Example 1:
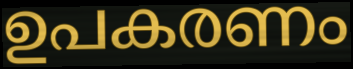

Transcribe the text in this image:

ഉപകരണം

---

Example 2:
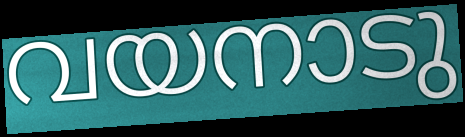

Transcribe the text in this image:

വയനാടു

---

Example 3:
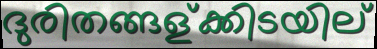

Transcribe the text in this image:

ദുരിതങ്ങള്ക്കിടയില്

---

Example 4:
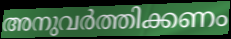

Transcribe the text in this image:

അനുവർത്തിക്കണം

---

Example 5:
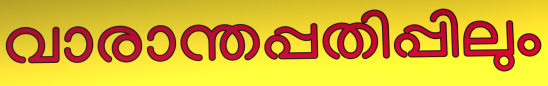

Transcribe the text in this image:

വാരാന്തപ്പതിപ്പിലും